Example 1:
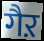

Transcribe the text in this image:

गैऱ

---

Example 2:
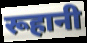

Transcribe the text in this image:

रूहानी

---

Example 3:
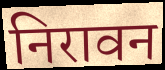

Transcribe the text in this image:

निरावन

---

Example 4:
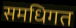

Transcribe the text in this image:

समधिगत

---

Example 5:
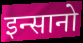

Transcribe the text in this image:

इन्सानो